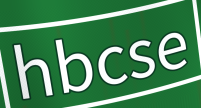
hbcse